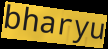
bharyu